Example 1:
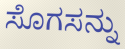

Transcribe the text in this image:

ಸೊಗಸನ್ನು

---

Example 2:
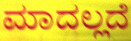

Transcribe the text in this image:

ಮಾದಲ್ಲದೆ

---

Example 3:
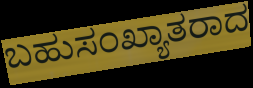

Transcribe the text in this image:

ಬಹುಸಂಖ್ಯಾತರಾದ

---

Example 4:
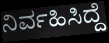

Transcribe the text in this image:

ನಿರ್ವಹಿಸಿದ್ದೆ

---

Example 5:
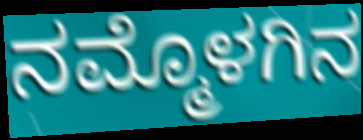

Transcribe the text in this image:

ನಮ್ಮೊಳಗಿನ